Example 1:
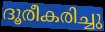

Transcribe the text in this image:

ദൂരീകരിച്ചു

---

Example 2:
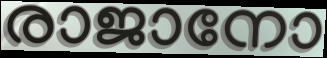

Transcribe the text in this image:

രാജാനോ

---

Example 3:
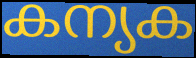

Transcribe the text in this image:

കന്യക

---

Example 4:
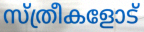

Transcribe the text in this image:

സ്ത്രീകളോട്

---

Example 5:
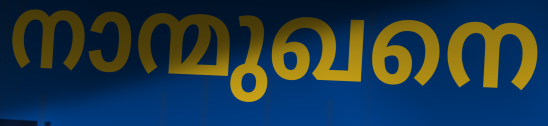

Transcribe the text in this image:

നാന്മുഖനെ